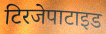
टिरजेपाटाइड